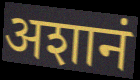
अशानं